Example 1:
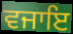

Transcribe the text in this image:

ਵਜਾਇ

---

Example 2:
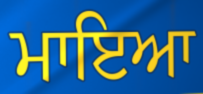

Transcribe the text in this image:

ਮਾਇਆ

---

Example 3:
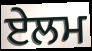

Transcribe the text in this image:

ਏਲਮ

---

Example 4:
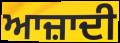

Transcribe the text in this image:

ਆਜ਼ਾਦੀ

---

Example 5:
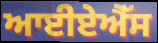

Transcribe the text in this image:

ਆਈਏਐੱਸ